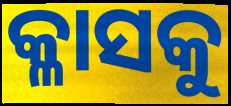
କ୍ଳାସକୁ